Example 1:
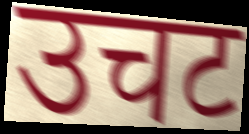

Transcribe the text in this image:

उचट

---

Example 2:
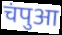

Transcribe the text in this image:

चंपुआ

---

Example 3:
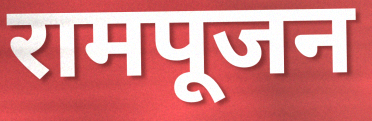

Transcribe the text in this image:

रामपूजन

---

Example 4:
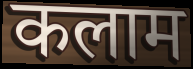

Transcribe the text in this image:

कलाम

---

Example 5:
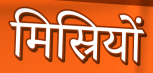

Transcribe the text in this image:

मिस्रियों